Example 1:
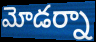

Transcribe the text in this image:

మోడర్నా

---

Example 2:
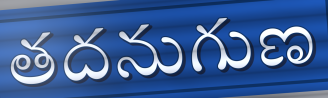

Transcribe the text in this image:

తదనుగుణ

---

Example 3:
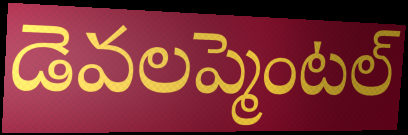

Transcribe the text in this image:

డెవలప్మెంటల్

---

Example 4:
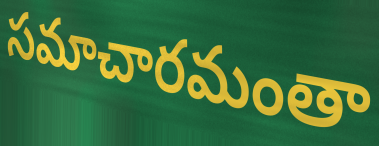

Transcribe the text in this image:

సమాచారమంతా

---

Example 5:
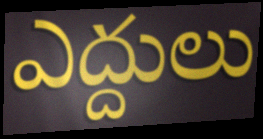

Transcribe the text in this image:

ఎద్దులు